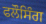
ਫਲੌਸਿੰਗ